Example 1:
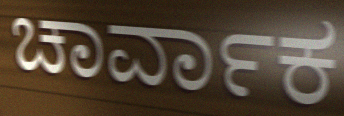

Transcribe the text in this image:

ಚಾರ್ವಾಕ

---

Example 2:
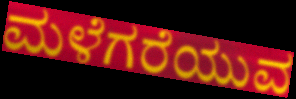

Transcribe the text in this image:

ಮಳೆಗರೆಯುವ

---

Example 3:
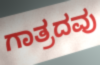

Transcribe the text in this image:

ಗಾತ್ರದವು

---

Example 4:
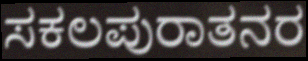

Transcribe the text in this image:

ಸಕಲಪುರಾತನರ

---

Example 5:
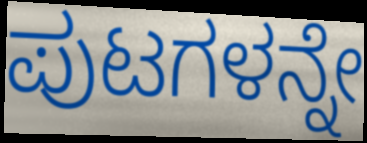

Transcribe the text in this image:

ಪುಟಗಳನ್ನೇ